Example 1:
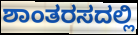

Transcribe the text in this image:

ಶಾಂತರಸದಲ್ಲಿ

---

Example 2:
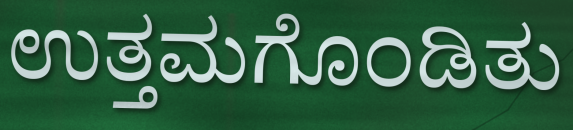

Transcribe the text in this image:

ಉತ್ತಮಗೊಂಡಿತು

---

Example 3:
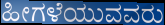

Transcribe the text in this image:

ಹೀಗಳೆಯುವವರು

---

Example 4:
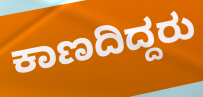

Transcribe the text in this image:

ಕಾಣದಿದ್ದರು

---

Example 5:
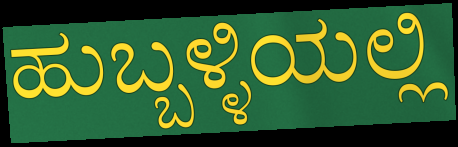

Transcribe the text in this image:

ಹುಬ್ಬಳ್ಳಿಯಲ್ಲಿ